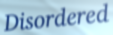
Disordered